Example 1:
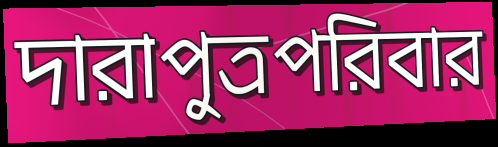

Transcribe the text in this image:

দারাপুত্রপরিবার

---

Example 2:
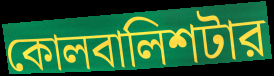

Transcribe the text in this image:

কোলবালিশটার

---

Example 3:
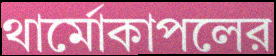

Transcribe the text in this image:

থার্মোকাপলের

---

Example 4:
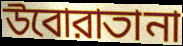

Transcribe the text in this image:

উবোরাতানা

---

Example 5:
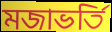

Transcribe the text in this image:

মজাভর্তি